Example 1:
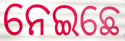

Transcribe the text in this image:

ନେଇଛେ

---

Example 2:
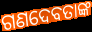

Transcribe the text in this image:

ଗଣଦେବତାଙ୍କ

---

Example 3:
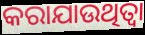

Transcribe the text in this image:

କରାଯାଉଥିତ୍ବା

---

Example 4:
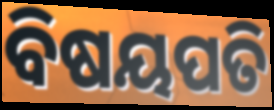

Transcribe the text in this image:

ବିଷୟପତି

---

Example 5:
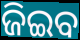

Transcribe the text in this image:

ଜିଇବ